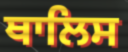
ਥਾਲਿਸ